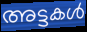
അട്ടകൾ